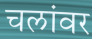
चलांवर